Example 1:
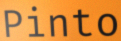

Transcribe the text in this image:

Pinto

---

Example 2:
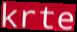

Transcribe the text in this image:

krte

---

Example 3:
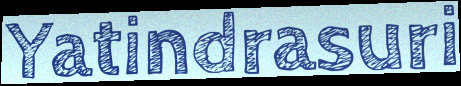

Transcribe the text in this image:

Yatindrasuri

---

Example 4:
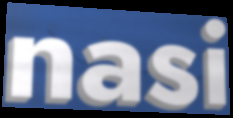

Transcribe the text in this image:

nasi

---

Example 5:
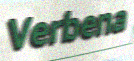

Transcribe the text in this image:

Verbena